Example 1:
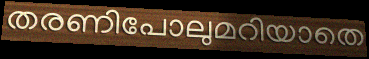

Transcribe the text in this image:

തരണിപോലുമറിയാതെ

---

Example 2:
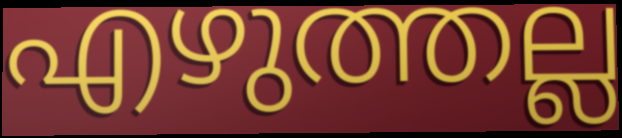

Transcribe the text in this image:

എഴുത്തല്ല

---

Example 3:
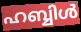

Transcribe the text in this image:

ഹബ്ബിൾ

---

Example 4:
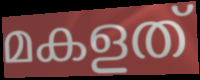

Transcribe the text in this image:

മകളത്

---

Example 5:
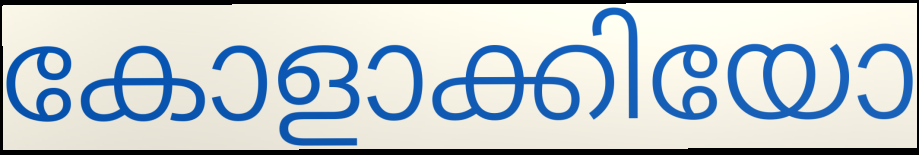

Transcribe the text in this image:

കോളാക്കിയോ